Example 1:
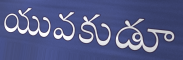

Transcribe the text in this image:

యువకుడూ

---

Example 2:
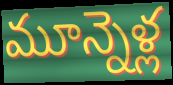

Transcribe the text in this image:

మూన్నెళ్ల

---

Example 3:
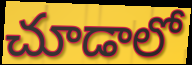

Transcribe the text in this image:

చూడాలో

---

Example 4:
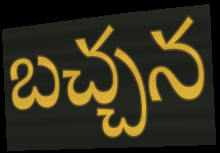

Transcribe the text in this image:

బచ్చన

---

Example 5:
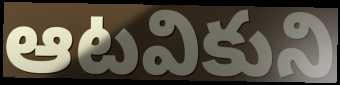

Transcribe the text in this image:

ఆటవికుని